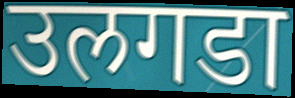
उलगडा